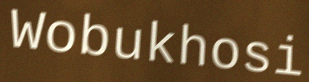
Wobukhosi